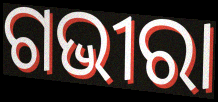
ଗଭୀରା